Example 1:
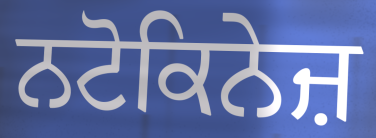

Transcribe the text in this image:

ਨਟੋਕਿਨੇਜ਼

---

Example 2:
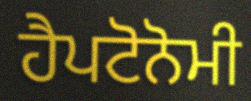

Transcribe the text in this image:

ਹੈਪਟੋਨੋਮੀ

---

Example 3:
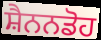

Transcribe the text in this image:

ਸ਼ੈਨਨਡੋਹ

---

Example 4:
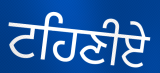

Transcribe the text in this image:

ਟਹਿਣੀਏ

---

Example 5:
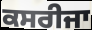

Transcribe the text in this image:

ਕਸਰੀਜਾ